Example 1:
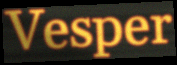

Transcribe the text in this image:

Vesper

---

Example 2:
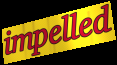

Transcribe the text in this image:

impelled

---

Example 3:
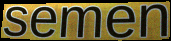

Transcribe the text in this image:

semen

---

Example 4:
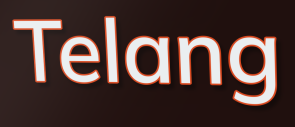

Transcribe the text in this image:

Telang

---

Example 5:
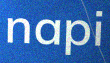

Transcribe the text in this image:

napi